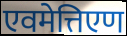
एवमेत्तिएण